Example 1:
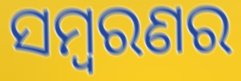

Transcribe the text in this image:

ସମ୍ବରଣର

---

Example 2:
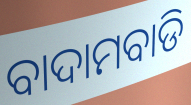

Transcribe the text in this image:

ବାଦାମବାଡି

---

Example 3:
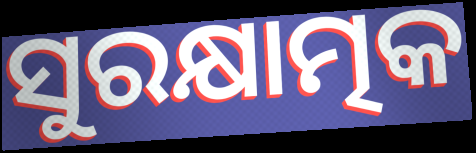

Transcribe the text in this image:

ସୁରକ୍ଷାତ୍ମକ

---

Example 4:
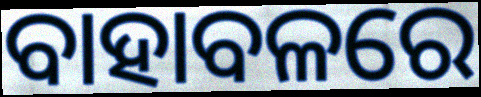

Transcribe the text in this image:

ବାହାବଳରେ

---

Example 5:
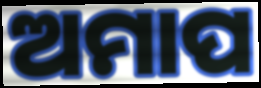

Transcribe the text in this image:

ଅମାପ